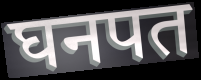
घनपत